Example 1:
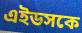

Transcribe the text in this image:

এইডসকে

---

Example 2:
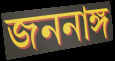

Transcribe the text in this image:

জননাঙ্গ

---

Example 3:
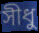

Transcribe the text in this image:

সীধু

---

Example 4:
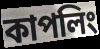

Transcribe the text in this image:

কাপলিং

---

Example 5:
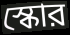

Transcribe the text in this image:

স্কোর